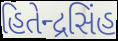
હિતેન્દ્રસિંહ